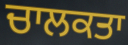
ਚਾਲਕਤਾ